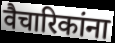
वैचारिकांना